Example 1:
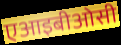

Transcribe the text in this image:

एआइबीओसी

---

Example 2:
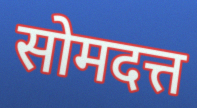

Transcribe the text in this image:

सोमदत्त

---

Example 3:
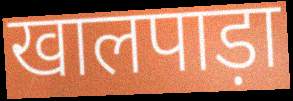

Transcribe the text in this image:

खालपाड़ा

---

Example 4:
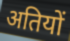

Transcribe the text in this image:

अतियों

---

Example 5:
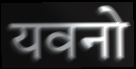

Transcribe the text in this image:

यवनो